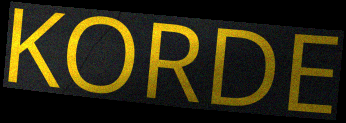
KORDE